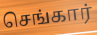
செங்கார்